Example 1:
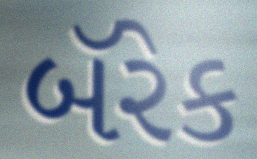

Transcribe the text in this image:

બૅરેક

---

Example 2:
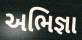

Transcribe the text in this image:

અભિજ્ઞા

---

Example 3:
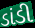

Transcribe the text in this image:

ડાંડી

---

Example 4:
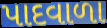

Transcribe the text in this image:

પાદવાળા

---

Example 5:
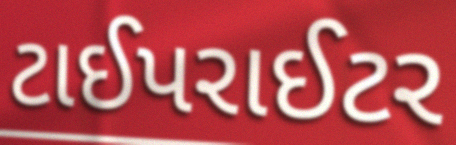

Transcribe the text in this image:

ટાઈપરાઈટર